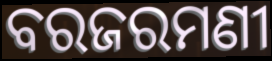
ବରଜରମଣୀ